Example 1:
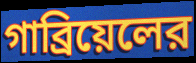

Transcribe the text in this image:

গাব্রিয়েলের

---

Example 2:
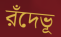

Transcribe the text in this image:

রঁদেভূ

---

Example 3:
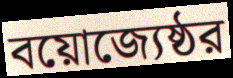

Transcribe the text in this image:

বয়োজ্যেষ্ঠর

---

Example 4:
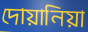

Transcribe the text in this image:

দোয়ানিয়া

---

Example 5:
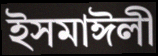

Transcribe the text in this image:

ইসমাঈলী